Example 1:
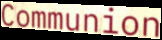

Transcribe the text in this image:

Communion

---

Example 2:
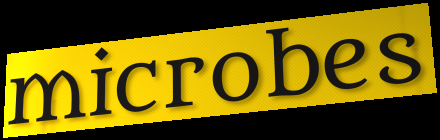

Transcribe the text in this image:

microbes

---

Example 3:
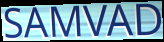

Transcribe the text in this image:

SAMVAD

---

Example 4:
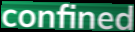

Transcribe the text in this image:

confined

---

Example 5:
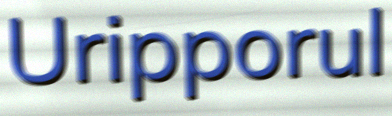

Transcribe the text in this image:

Uripporul